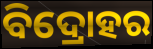
ବିଦ୍ରୋହର